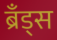
ब्रँड्स